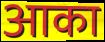
आका